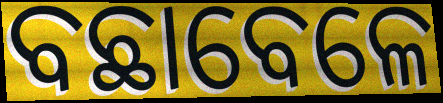
ବଛାବେଳେ